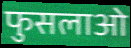
फुसलाओ